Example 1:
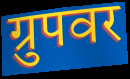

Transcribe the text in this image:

ग्रुपवर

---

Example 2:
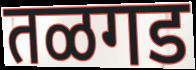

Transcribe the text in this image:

तळगड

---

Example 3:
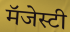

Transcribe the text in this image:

मॅजेस्टी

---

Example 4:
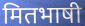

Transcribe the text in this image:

मितभाषी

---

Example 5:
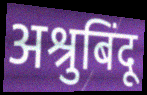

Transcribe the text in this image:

अश्रुबिंदू